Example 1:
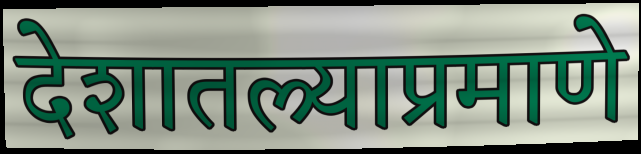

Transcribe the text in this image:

देशातल्याप्रमाणे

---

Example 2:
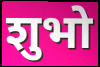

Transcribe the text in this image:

शुभो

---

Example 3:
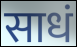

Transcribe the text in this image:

साधं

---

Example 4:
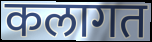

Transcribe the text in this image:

कलागत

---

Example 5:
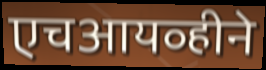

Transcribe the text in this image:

एचआयव्हीने